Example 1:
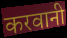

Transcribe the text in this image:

करवानी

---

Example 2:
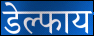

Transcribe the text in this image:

डेल्फाय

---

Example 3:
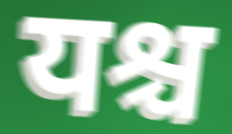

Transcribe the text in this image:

यश्च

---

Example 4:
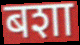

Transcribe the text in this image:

बशा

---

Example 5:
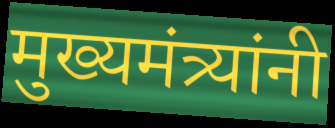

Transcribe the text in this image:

मुख्यमंत्र्यांनी